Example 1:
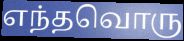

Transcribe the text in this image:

எந்தவொரு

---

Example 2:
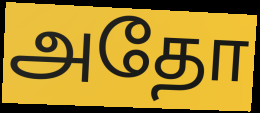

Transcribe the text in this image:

அதோ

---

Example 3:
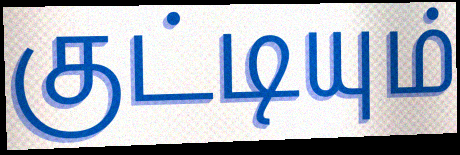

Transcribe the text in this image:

குட்டியும்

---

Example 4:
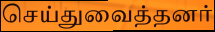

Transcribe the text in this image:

செய்துவைத்தனர்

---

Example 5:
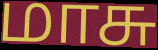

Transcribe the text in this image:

மாசு